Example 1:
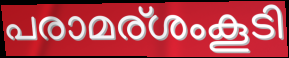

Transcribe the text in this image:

പരാമര്ശംകൂടി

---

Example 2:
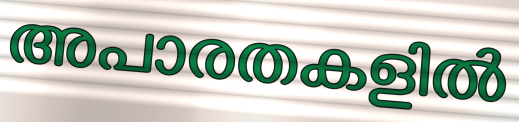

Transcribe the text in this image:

അപാരതകളിൽ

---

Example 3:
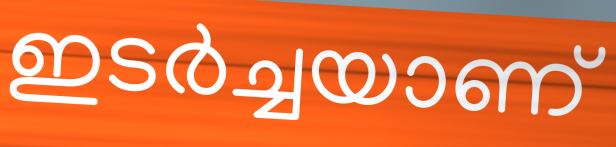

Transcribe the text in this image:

ഇടർച്ചയാണ്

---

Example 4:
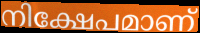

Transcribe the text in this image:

നിക്ഷേപമാണ്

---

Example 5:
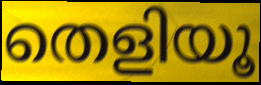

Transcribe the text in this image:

തെളിയൂ